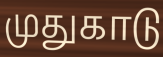
முதுகாடு